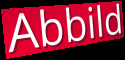
Abbild